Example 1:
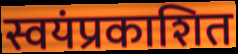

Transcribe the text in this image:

स्वयंप्रकाशित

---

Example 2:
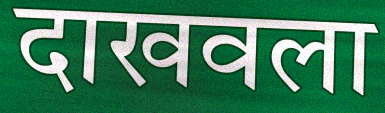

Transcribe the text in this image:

दाखवला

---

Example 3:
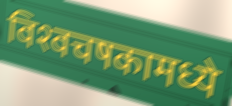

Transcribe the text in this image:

विश्वचषकामध्ये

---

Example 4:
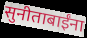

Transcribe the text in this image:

सुनीताबाईंना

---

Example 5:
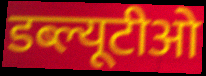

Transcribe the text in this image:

डब्ल्यूटीओ